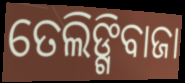
ତେଲିଙ୍ଗିବାଜା